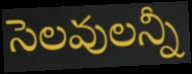
సెలవులన్నీ